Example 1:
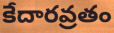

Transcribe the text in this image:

కేదారవ్రతం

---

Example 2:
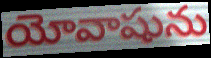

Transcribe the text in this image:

యోవాషును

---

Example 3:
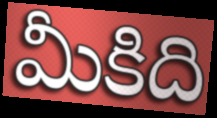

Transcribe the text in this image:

మీకిది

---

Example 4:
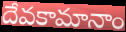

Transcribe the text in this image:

దేవకామానాం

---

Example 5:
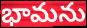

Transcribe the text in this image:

భామను